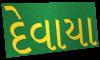
દેવાયા